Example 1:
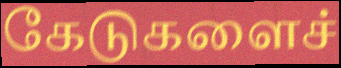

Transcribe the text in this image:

கேடுகளைச்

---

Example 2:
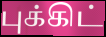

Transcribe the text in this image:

புக்கிட்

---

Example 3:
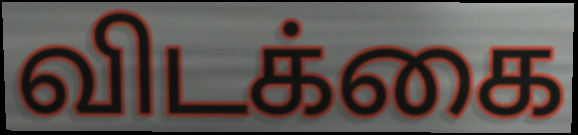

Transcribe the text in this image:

விடக்கை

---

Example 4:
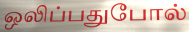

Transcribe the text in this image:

ஒலிப்பதுபோல்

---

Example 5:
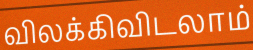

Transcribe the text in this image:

விலக்கிவிடலாம்